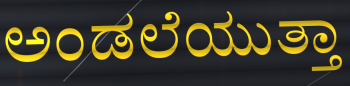
ಅಂಡಲೆಯುತ್ತಾ